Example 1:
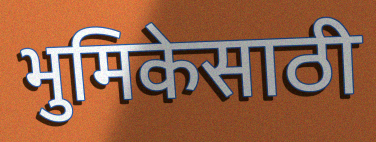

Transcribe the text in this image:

भुमिकेसाठी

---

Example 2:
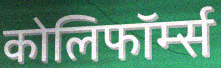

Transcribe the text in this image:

कोलिफॉर्म्स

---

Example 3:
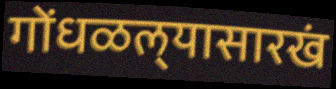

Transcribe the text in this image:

गोंधळल्यासारखं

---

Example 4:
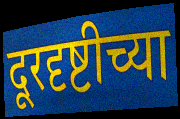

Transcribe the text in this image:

दूरदृष्टीच्या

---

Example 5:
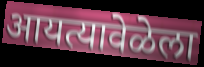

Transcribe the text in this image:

आयत्यावेळेला